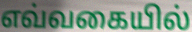
எவ்வகையில்